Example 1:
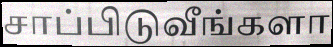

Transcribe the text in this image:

சாப்பிடுவீங்களா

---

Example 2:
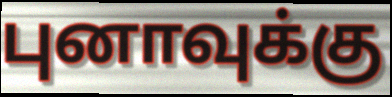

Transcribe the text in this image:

புனாவுக்கு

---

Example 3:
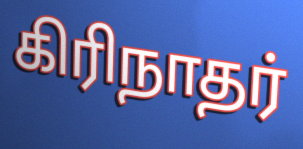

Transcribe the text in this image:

கிரிநாதர்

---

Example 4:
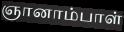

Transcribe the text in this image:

ஞானாம்பாள்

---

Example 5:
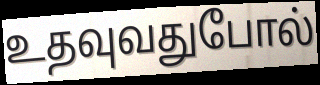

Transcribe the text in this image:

உதவுவதுபோல்